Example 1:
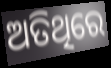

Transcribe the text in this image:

ଅତିଥିରେ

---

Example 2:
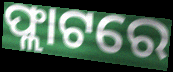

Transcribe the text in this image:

ଫ୍ଲାଟରେ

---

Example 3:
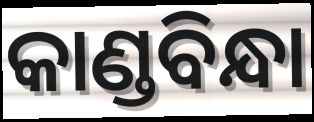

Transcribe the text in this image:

କାଣ୍ଡବିନ୍ଧା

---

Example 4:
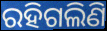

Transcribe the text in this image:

ରହିଗଲିଣି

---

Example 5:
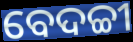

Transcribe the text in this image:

ବେଦଚ୍ଚୀ